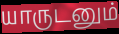
யாருடனும்